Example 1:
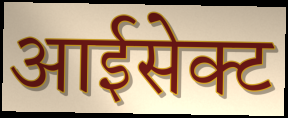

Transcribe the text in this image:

आईसेक्ट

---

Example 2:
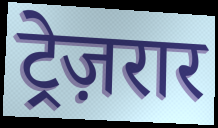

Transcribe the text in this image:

ट्रेज़रार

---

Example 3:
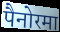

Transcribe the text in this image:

पैनोरमा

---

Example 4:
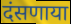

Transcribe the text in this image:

दंसणाया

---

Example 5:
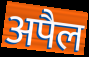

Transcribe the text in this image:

अपैल